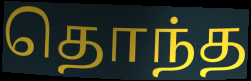
தொந்த